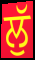
ਲੁੱ